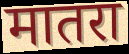
मातरा